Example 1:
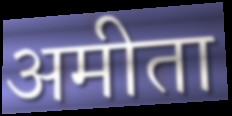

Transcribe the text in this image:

अमीता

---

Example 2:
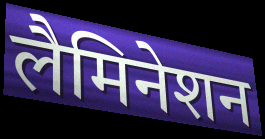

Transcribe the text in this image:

लैमिनेशन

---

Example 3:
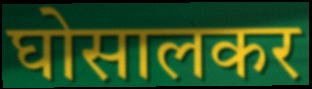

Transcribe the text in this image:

घोसालकर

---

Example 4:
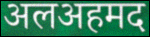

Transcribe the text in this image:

अलअहमद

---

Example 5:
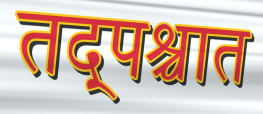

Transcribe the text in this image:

तद्पश्चात